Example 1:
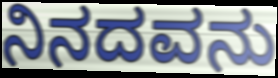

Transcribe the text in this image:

ನಿನದವನು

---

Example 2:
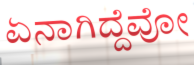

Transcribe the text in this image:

ಏನಾಗಿದ್ದೆವೋ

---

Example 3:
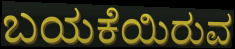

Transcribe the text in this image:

ಬಯಕೆಯಿರುವ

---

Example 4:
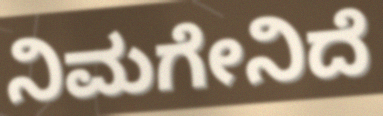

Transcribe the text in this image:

ನಿಮಗೇನಿದೆ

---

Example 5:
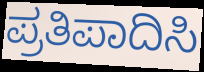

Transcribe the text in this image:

ಪ್ರತಿಪಾದಿಸಿ